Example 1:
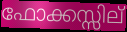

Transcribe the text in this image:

ഫോക്കസ്സില്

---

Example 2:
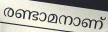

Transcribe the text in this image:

രണ്ടാമനാണ്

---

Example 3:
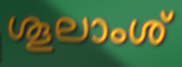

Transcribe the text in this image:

ശൂലാംശ്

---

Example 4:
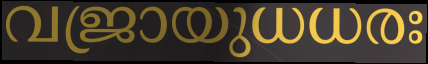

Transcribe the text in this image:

വജ്രായുധധരഃ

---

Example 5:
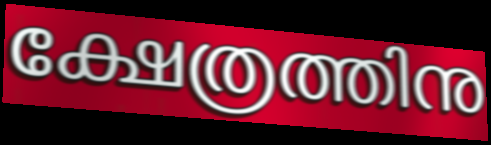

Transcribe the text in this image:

ക്ഷേത്രത്തിനു